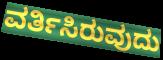
ವರ್ತಿಸಿರುವುದು